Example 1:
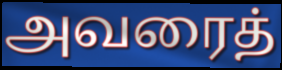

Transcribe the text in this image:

அவரைத்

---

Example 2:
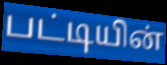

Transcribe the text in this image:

பட்டியின்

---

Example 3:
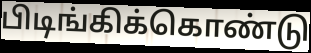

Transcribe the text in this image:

பிடிங்கிக்கொண்டு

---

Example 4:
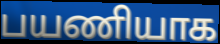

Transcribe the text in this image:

பயணியாக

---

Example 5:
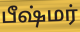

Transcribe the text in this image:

பீஷ்மர்